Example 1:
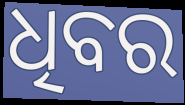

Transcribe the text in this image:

ଧିବର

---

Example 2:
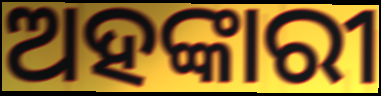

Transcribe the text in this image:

ଅହଙ୍କାରୀ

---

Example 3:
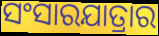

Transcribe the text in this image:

ସଂସାରଯାତ୍ରାର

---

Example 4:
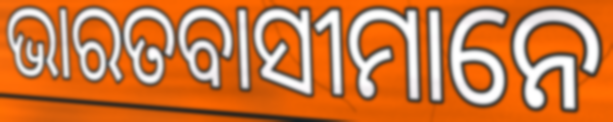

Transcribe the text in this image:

ଭାରତବାସୀମାନେ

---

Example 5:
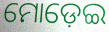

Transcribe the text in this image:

ମୋଡ଼େଇ